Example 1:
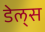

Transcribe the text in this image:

डेल्स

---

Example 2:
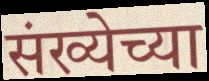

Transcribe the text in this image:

संख्येच्या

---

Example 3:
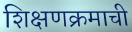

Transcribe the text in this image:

शिक्षणक्रमाची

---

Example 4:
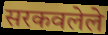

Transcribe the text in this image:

सरकवलेले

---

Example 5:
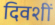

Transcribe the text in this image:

दिवशीं